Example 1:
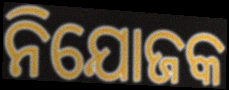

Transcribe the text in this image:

ନିଯୋଜକ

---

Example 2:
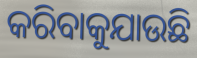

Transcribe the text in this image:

କରିବାକୁଯାଉଛି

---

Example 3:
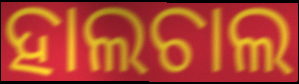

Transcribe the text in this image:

ହାଲଚାଲ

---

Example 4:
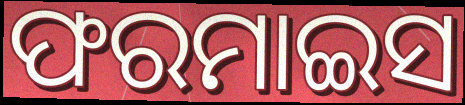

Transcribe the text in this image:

ଫରମାଇସ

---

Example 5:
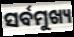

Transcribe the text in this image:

ସର୍ବମୁଖ୍ୟ